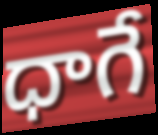
ధాగే